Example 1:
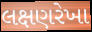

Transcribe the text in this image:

લક્ષણરેખા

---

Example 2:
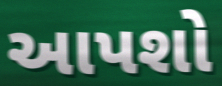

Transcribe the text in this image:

આપશો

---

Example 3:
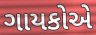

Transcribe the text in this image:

ગાયકોએ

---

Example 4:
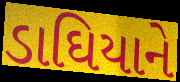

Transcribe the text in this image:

ડાઘિયાને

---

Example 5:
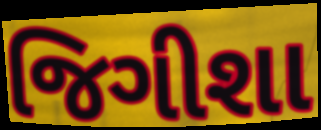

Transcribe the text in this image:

જિગીશા